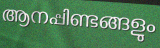
ആനപ്പിണ്ടങ്ങളും